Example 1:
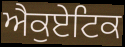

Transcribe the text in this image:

ਐਕੁਏਟਿਕ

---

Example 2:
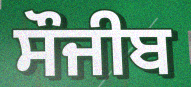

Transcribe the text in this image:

ਸੌਜੀਬ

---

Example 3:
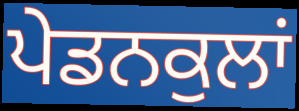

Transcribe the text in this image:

ਪੇਡਨਕੁਲਾਂ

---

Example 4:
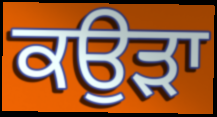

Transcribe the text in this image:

ਕਉੜਾ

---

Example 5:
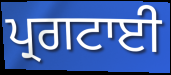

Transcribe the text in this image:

ਪ੍ਰਗਟਾਈ